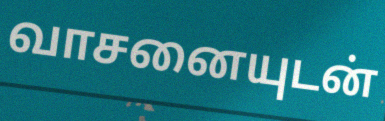
வாசனையுடன்